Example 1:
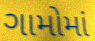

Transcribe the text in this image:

ગામોમાં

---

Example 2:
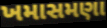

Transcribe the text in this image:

ખમાસમણા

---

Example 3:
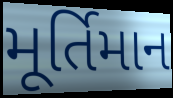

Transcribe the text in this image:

મૂર્તિમાન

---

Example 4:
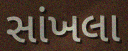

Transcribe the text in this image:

સાંખલા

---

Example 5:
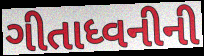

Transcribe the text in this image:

ગીતાધ્વનીની